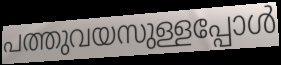
പത്തുവയസുള്ളപ്പോൾ